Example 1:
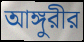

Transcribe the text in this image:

আঙ্গুরীর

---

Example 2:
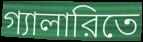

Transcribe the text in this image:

গ্যালারিতে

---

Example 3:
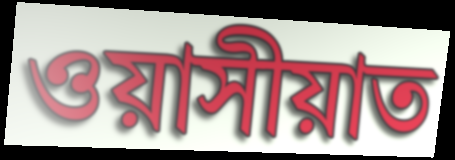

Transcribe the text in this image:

ওয়াসীয়াত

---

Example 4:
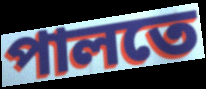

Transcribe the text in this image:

পালতে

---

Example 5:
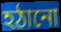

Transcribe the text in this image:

হঠানো